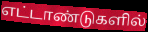
எட்டாண்டுகளில்